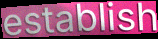
establish